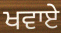
ਖਵਾਏ